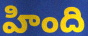
హింది